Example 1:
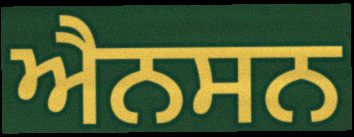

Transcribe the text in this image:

ਐਨਸਨ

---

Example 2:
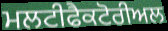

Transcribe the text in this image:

ਮਲਟੀਫੈਕਟੋਰੀਅਲ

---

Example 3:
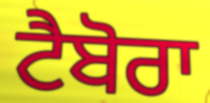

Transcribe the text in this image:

ਟੈਬੋਰਾ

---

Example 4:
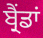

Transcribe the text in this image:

ਬ੍ਰੈਂਡਾਂ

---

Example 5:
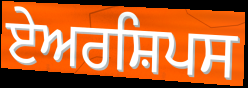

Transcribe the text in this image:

ਏਅਰਸ਼ਿਪਸ